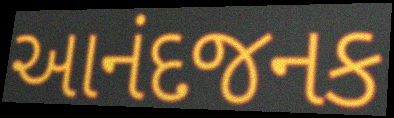
આનંદજનક